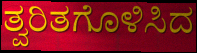
ತ್ವರಿತಗೊಳಿಸಿದ